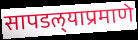
सापडल्याप्रमाणे